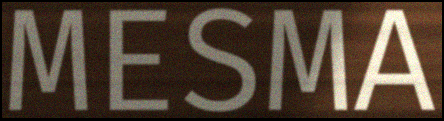
MESMA